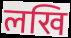
लखि